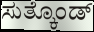
ಸುತ್ಕೊಂಡ್